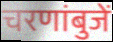
चरणांबुजें